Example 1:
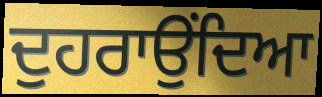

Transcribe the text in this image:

ਦੁਹਰਾਉਂਦਿਆ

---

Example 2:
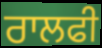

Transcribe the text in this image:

ਰਾਲਫੀ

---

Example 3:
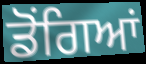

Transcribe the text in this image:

ਡੋਂਗਿਆਂ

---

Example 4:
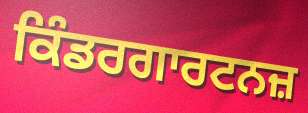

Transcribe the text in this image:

ਕਿੰਡਰਗਾਰਟਨਜ਼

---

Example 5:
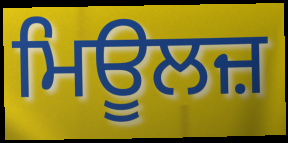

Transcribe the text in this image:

ਮਿਊਲਜ਼